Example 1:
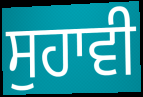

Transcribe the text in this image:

ਸੁਹਾਵੀ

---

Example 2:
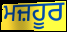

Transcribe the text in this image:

ਮਜ਼ਹੂਰ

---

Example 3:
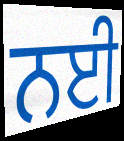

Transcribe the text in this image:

ਨਈ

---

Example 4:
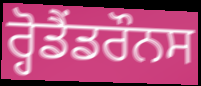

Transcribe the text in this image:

ਰ੍ਹੋਡੈਂਡਰੌਨਸ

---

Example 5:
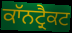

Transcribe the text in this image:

ਕਾੱਨਟ੍ਰੈਕਟ